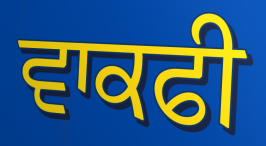
ਵਾਕਫੀ